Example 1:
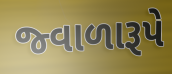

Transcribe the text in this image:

જ્વાળારૂપે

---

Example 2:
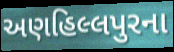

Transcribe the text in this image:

અણહિલ્લપુરના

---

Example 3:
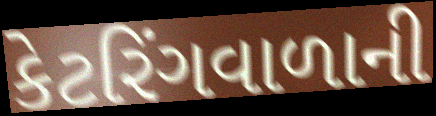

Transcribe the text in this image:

કેટરિંગવાળાની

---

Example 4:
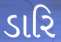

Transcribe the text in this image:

ડારિ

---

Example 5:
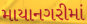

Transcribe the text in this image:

માયાનગરીમાં